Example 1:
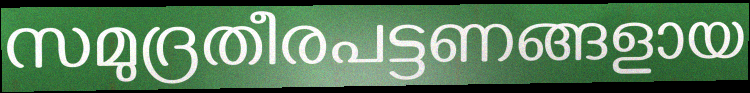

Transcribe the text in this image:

സമുദ്രതീരപട്ടണങ്ങളായ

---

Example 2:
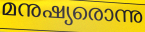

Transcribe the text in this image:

മനുഷ്യരൊന്നു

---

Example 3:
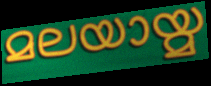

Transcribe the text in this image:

മലയായ്മ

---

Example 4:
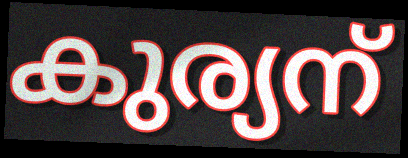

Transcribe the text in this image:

കുര്യന്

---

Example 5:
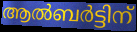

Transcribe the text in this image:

ആൽബർട്ടിന്